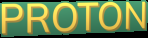
PROTON